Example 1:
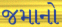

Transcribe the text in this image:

જમાનો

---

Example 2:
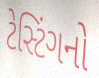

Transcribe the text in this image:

ટેસ્ટિંગનો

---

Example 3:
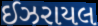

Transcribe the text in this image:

ઈઝરાયલ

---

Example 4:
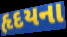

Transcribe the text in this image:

હૃદયના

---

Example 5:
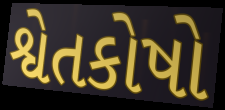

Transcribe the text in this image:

શ્વેતકોષો